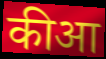
कीआ